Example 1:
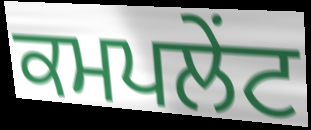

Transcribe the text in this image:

ਕਮਪਲੇਂਟ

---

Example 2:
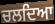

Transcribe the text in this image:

ਚਲਦਿਆ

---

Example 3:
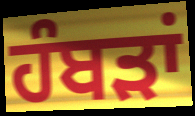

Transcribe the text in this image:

ਹੰਬੜਾਂ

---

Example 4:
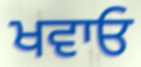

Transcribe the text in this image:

ਖਵਾਓ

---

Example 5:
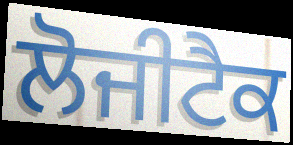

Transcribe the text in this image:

ਲੋਜੀਟੈਕ